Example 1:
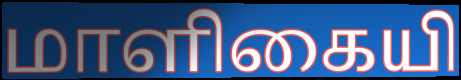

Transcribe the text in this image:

மாளிகையி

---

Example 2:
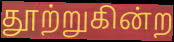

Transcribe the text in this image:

தூற்றுகின்ற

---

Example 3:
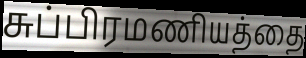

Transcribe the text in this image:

சுப்பிரமணியத்தை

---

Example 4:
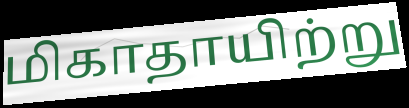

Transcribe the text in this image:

மிகாதாயிற்று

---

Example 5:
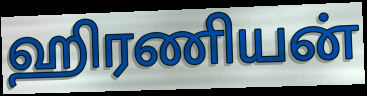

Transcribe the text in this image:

ஹிரணியன்